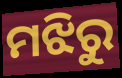
ମଝିରୁ